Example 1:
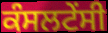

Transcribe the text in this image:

ਕੰਸਲਟੇਂਸੀ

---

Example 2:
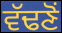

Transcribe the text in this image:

ਵੱਢਣੋਂ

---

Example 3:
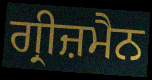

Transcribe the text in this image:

ਗ੍ਰੀਜ਼ਮੈਨ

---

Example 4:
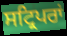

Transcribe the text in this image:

ਸਟ੍ਰਿਪਰਾਂ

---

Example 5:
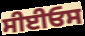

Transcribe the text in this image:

ਸੀਈਓਸ